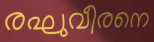
രഘുവീരനെ